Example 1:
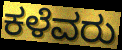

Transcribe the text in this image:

ಕಳೆವರು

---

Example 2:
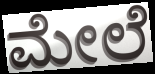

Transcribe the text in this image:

ಮೇಲೆ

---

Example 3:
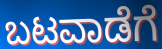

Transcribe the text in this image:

ಬಟವಾಡೆಗೆ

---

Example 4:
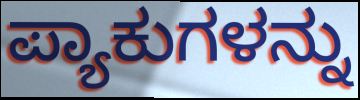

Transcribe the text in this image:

ಪ್ಯಾಕುಗಳನ್ನು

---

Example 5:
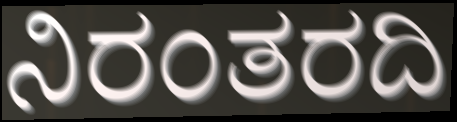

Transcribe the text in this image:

ನಿರಂತರದಿ